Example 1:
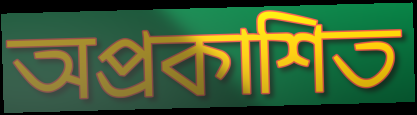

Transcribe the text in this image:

অপ্ৰকাশিত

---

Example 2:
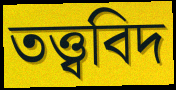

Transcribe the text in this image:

তত্ত্ববিদ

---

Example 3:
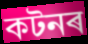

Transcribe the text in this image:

কটনৰ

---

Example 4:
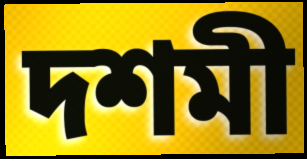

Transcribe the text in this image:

দশমী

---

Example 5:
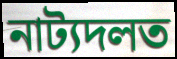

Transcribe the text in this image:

নাট্যদলত